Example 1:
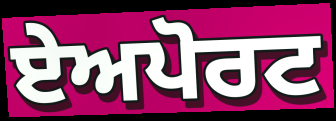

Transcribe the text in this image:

ਏਅਪੋਰਟ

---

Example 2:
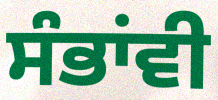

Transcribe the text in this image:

ਸੰਭਾਂਵੀ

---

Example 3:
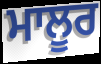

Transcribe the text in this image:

ਮਾਲੂਰ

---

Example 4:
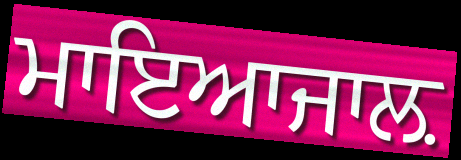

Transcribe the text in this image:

ਮਾਇਆਜਾਲ਼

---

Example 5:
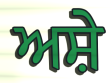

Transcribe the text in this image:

ਅਸ਼ੇ